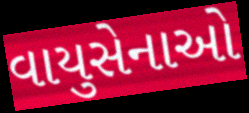
વાયુસેનાઓ